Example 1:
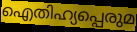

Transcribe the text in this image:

ഐതിഹ്യപ്പെരുമ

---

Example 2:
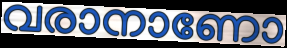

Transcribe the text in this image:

വരാനാണോ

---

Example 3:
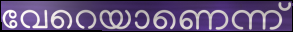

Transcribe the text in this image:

വേറെയാണെന്ന്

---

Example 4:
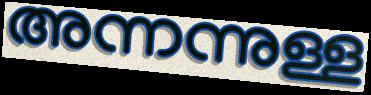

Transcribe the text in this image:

അന്നന്നുള്ള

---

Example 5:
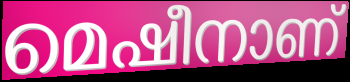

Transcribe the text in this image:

മെഷീനാണ്